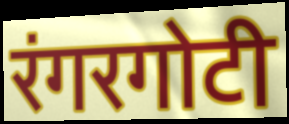
रंगरगोटी